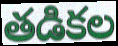
తడికల